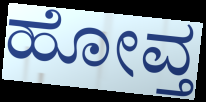
ಹೋವ್ತ